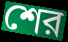
শের